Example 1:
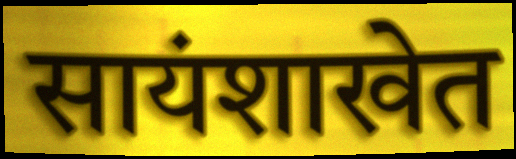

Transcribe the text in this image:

सायंशाखेत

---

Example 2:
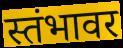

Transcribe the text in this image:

स्तंभावर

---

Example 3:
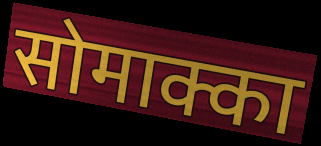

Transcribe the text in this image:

सोमाक्का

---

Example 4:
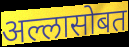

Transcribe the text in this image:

अल्लासोबत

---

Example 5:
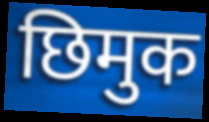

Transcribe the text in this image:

छिमुक